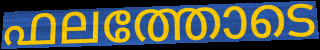
ഫലത്തോടെ